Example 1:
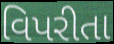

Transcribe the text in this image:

વિપરીતા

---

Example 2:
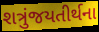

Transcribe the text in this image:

શત્રુંજયતીર્થના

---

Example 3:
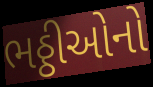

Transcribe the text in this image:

ભઠ્ઠીઓનો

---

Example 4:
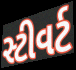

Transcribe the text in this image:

સ્ટીવર્ટ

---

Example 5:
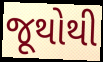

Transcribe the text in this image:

જૂથોથી